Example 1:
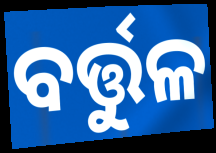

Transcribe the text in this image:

ବର୍ତ୍ତୁଳ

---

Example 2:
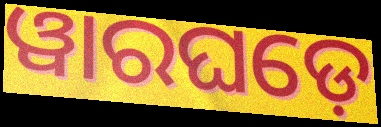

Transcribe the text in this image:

ୱାରଘଡ଼େ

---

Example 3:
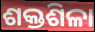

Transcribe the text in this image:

ଶକ୍ତଶିଳା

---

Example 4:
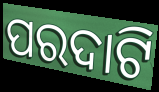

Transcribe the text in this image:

ପରଦାଟି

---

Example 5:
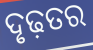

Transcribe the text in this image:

ଦୃଢ଼ତର